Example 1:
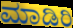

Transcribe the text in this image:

ಮಾಡಿರಿ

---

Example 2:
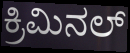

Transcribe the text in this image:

ಕ್ರಿಮಿನಲ್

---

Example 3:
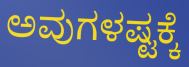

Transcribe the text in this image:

ಅವುಗಳಷ್ಟಕ್ಕೆ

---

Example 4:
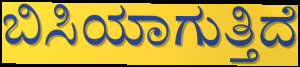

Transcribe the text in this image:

ಬಿಸಿಯಾಗುತ್ತಿದೆ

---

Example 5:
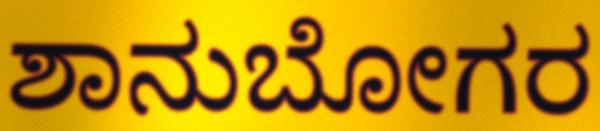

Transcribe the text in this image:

ಶಾನುಬೋಗರ